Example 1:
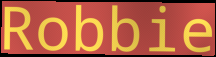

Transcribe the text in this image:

Robbie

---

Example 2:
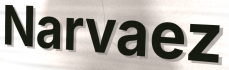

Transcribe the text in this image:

Narvaez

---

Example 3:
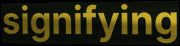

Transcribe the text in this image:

signifying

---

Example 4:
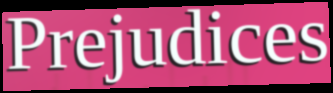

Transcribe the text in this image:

Prejudices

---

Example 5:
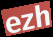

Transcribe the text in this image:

ezh